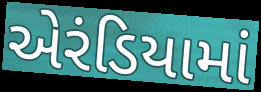
એરંડિયામાં